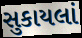
સુકાયલાં